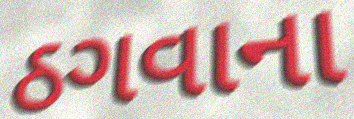
ઠગવાના